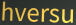
hversu